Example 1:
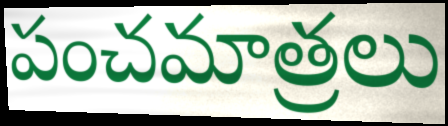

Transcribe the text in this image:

పంచమాత్రలు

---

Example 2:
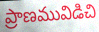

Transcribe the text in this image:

ప్రాణమువిడిచి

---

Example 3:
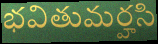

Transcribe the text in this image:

భవితుమర్హసి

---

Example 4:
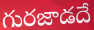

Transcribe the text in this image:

గురజాడదే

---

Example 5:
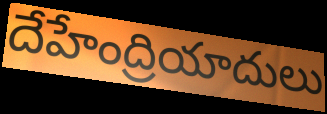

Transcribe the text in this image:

దేహేంద్రియాదులు